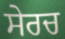
ਸੇਰਚ